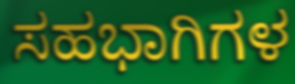
ಸಹಭಾಗಿಗಳ